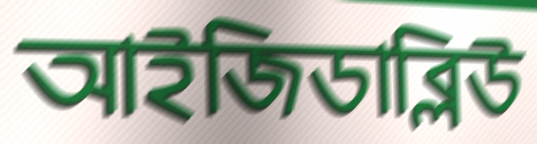
আইজিডাব্লিউ